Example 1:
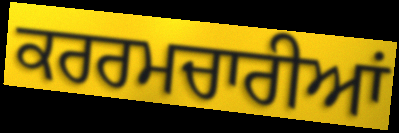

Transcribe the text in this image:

ਕਰਰਮਚਾਰੀਆਂ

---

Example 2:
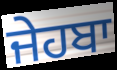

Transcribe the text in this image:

ਜੇਹਬਾ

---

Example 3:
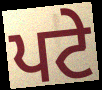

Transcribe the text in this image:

ਪਟੇ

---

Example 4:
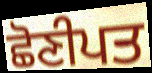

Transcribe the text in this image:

ਛੋਣੀਪਤ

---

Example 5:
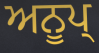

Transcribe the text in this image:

ਅਨੂਪ੍